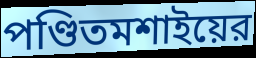
পণ্ডিতমশাইয়ের